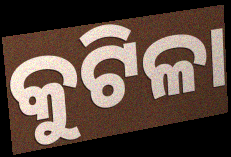
କୁଟିଳା